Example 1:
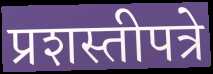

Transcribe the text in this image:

प्रशस्तीपत्रे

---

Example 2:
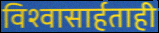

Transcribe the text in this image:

विश्वासार्हताही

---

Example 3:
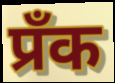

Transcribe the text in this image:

प्रँक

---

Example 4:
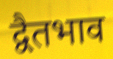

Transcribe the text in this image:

द्वैतभाव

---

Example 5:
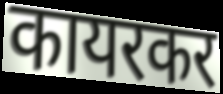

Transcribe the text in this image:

कायरकर